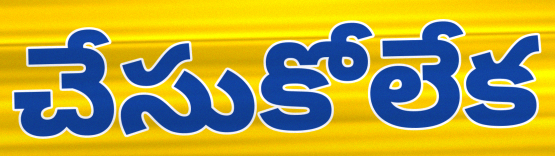
చేసుకోలేక